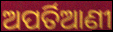
ଅପର୍ତିଆଣୀ